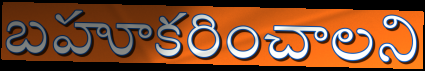
బహూకరించాలని